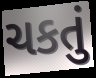
ચકતું